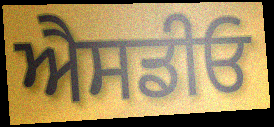
ਐਸਡੀਓ